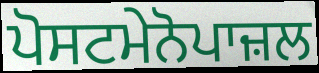
ਪੋਸਟਮੇਨੋਪਾਜ਼ਲ